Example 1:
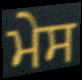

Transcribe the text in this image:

ਮੇਸ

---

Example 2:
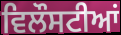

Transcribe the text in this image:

ਵਿਲੌਸਟੀਆਂ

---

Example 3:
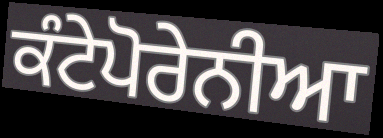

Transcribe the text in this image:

ਕੰਟੇਪੋਰੇਨੀਆ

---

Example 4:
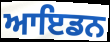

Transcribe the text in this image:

ਆਇਡਨ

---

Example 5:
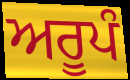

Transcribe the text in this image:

ਅਰੂਪੰ